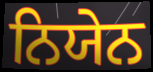
ਨਿਯੇਨ